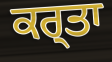
ਕਰ੍ਤਾ